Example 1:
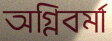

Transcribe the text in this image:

অগ্নিবর্মা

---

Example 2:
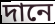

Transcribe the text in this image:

দানে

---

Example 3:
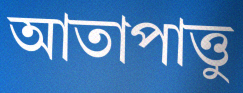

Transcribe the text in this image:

আতাপাত্তু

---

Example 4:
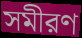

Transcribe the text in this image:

সমীরণ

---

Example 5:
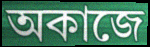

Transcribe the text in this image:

অকাজে